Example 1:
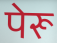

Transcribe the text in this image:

पेरू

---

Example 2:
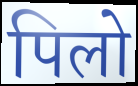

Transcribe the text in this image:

पिलो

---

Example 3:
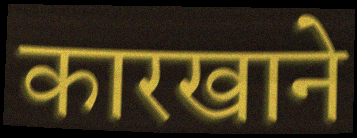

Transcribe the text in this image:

कारखाने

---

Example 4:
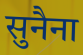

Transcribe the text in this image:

सुनैना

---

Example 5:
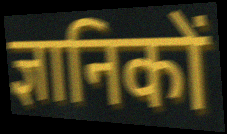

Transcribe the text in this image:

ज्ञानिकों